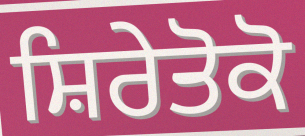
ਸ਼ਿਰੇਤੋਕੋ